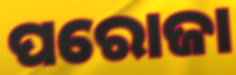
ପରୋଜା